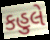
કહુલે